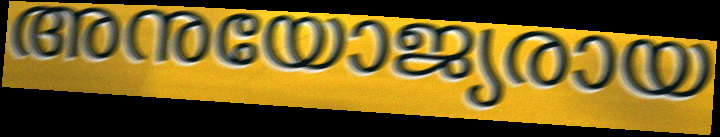
അനുയോജ്യരായ